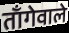
ताँगेवाले